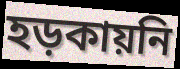
হড়কায়নি